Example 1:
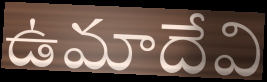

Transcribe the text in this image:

ఉమాదేవి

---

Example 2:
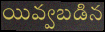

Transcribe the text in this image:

యివ్వబడిన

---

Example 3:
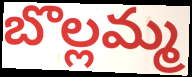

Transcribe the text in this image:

బొల్లమ్మ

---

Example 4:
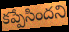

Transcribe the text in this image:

కప్పేసిందని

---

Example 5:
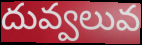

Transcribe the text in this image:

దువ్వలువ